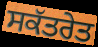
ਸਕੱਤਰੇਤ